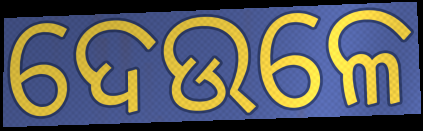
ଦେଉଳେ